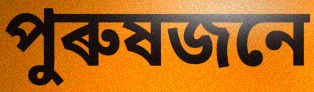
পুৰুষজনে